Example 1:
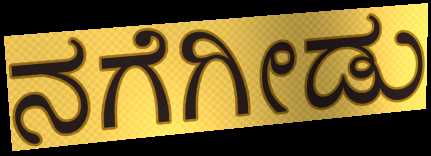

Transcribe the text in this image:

ನಗೆಗೀಡು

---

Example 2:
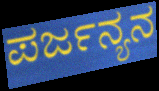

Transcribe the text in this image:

ಪರ್ಜನ್ಯನ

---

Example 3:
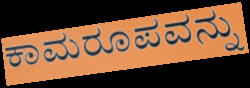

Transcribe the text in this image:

ಕಾಮರೂಪವನ್ನು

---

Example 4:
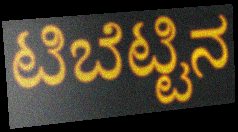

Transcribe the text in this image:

ಟಿಬೆಟ್ಟಿನ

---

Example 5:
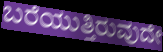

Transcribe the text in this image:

ಬರೆಯುತ್ತಿರುವುದೇ